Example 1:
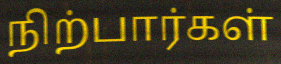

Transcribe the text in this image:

நிற்பார்கள்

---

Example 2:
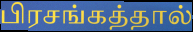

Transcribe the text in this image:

பிரசங்கத்தால்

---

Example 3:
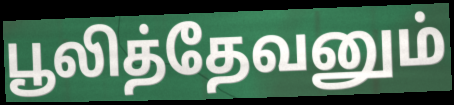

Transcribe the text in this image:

பூலித்தேவனும்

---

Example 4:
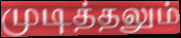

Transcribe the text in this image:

முடித்தலும்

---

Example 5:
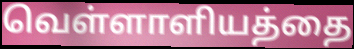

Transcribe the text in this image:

வெள்ளாளியத்தை